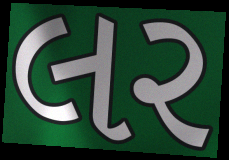
લર